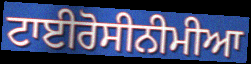
ਟਾਈਰੋਸੀਨੀਮੀਆ